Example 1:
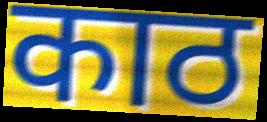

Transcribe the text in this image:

काठ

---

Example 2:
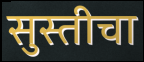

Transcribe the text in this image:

सुस्तीचा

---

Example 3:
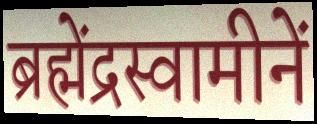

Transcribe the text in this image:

ब्रह्मेंद्रस्वामीनें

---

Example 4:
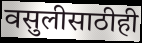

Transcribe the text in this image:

वसुलीसाठीही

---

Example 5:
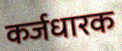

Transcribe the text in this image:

कर्जधारक